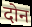
दोन